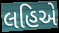
લહિએ